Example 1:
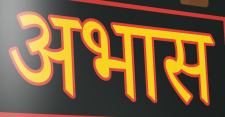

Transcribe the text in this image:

अभास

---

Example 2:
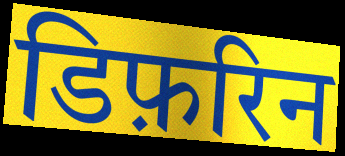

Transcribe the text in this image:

डिफ़रिन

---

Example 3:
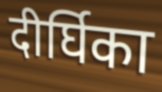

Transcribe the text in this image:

दीर्घिका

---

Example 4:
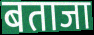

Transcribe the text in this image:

बताजा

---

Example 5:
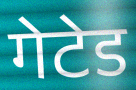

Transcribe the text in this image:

गेटेड